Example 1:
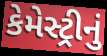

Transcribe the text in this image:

કેમેસ્ટ્રીનું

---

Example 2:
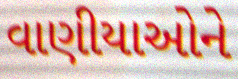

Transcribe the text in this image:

વાણીયાઓને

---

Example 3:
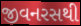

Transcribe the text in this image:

જીવનરસથી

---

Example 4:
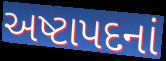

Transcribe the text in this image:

અષ્ટાપદનાં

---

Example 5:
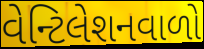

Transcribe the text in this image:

વેન્ટિલેશનવાળો